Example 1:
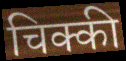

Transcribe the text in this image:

चिक्की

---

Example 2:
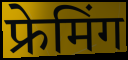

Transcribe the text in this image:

फ्रेमिंग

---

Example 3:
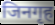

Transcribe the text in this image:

जिनगृह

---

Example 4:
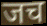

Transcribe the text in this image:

जच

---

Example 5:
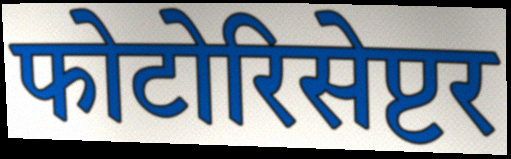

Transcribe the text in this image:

फोटोरिसेप्टर